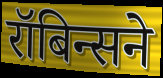
रॉबिन्सने